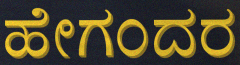
ಹೇಗಂದರ